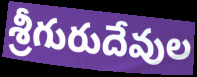
శ్రీగురుదేవుల